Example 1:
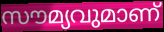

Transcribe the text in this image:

സൗമ്യവുമാണ്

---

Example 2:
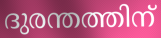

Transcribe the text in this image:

ദുരന്തത്തിന്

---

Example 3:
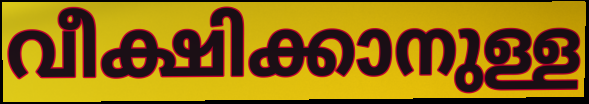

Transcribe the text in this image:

വീക്ഷിക്കാനുള്ള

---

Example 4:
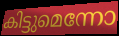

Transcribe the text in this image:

കിട്ടുമെന്നോ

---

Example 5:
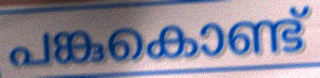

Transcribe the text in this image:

പങ്കുകൊണ്ട്